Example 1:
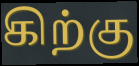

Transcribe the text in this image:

கிற்கு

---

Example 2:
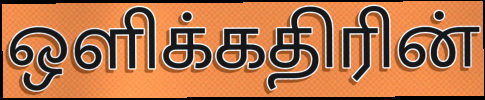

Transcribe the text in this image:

ஒளிக்கதிரின்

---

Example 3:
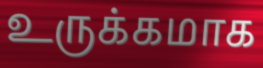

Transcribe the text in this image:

உருக்கமாக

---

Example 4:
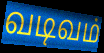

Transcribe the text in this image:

வடிவம்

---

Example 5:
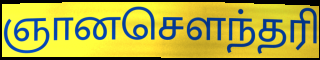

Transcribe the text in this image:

ஞானசெளந்தரி